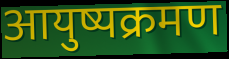
आयुष्यक्रमण